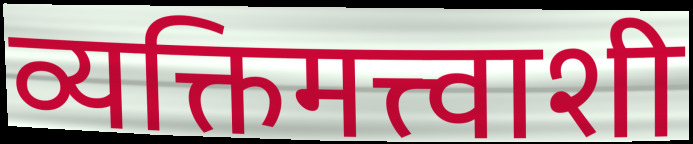
व्यक्तिमत्त्वाशी